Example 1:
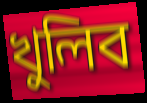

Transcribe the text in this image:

খুলিব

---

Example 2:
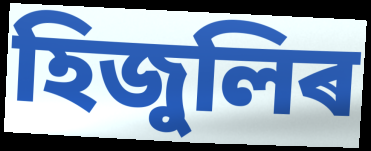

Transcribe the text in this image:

হিজুলিৰ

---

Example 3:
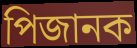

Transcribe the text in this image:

পিজানক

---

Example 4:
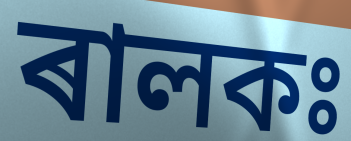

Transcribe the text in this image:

ৰালকঃ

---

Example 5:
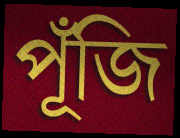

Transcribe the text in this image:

পূঁজি